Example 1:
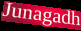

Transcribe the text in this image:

Junagadh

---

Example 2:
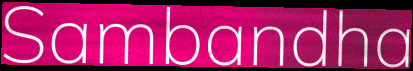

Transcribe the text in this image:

Sambandha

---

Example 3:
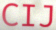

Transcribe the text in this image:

CIJ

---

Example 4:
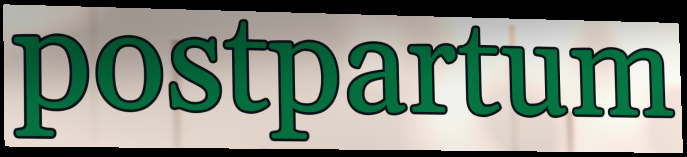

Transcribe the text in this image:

postpartum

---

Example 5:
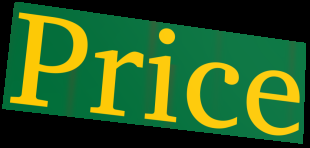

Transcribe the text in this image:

Price